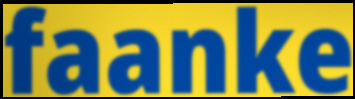
faanke